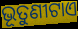
ଭୂତୁଣୀଟାଏ